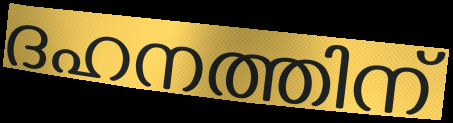
ദഹനത്തിന്